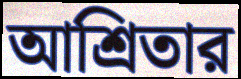
আশ্রিতার